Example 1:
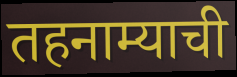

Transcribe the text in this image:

तहनाम्याची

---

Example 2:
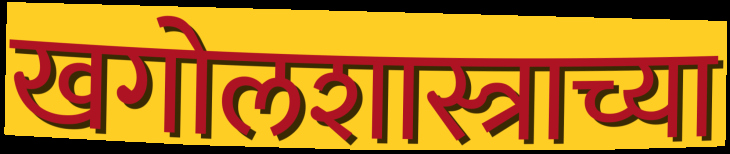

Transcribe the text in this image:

खगोलशास्त्राच्या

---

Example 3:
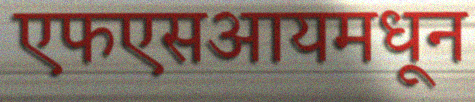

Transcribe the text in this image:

एफएसआयमधून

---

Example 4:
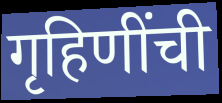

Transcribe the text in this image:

गृहिणींची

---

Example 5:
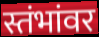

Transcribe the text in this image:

स्तंभांवर